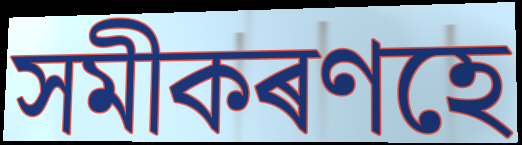
সমীকৰণহে